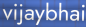
vijaybhai